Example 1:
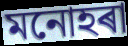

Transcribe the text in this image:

মনোহৰা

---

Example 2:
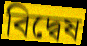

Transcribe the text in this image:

বিদ্বেষ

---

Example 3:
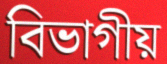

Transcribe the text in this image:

বিভাগীয়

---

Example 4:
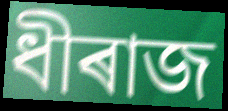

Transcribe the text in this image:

ধীৰাজ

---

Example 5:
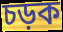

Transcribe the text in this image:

চড়ক